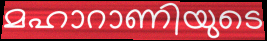
മഹാറാണിയുടെ